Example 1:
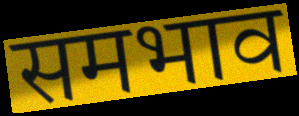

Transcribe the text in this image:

समभाव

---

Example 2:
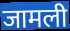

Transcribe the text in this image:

जामली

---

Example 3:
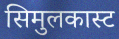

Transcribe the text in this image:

सिमुलकास्ट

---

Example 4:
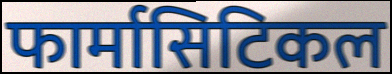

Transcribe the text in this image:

फार्मासिटिकल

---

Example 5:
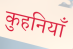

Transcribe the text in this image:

कुहनियाँ